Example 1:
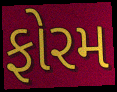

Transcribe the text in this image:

ફોરમ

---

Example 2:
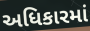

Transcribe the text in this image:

અધિકારમાં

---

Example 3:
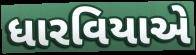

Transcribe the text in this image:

ધારવિયાએ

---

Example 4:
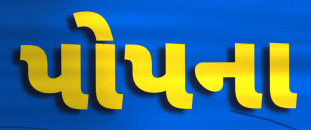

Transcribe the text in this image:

પોપના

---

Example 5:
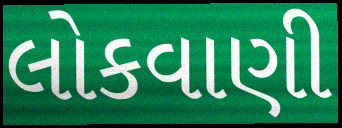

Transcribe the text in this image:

લોકવાણી